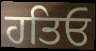
ਹਤਿਓ